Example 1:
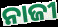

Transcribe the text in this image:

ନାଜୀ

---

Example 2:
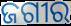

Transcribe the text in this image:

ଜଗୀର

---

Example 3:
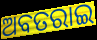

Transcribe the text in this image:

ଅବତରାଇ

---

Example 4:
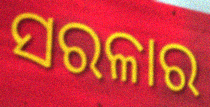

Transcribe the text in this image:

ସରଳାର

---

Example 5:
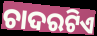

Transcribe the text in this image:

ଚାଦରଟିଏ